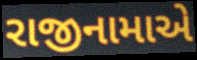
રાજીનામાએ